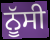
ਨੂੱਸੀ